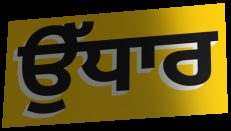
ਉੱਧਾਰ